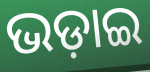
ଭଡ଼ାଇ